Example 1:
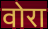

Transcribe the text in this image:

वोरा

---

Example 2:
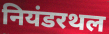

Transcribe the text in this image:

नियंडरथल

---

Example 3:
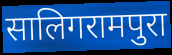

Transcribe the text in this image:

सालिगरामपुरा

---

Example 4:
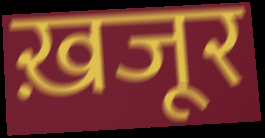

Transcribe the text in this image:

ख़जूर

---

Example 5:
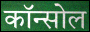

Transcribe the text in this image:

कॉन्सोल